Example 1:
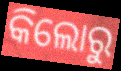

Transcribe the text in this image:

କିଲୋରୁ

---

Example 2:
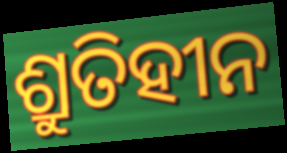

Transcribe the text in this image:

ଶ୍ରୁତିହୀନ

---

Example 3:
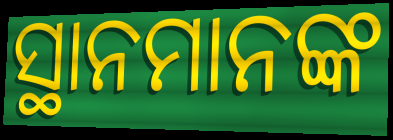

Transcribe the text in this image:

ସ୍ଥାନମାନଙ୍କ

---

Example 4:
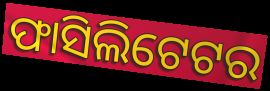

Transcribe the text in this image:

ଫାସିଲିଟେଟର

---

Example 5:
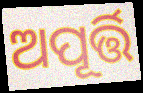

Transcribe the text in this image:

ଅପୂର୍ତ୍ତି